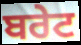
ਬਰੇਟ